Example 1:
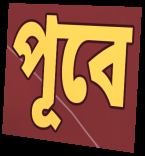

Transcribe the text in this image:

পূবে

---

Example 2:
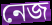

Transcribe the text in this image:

নেজ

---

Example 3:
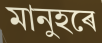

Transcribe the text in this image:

মানুহৰে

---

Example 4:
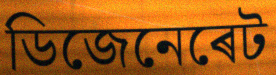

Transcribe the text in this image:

ডিজেনেৰেট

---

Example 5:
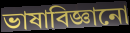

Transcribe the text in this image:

ভাষাবিজ্ঞানো